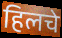
हिलचे